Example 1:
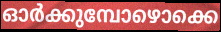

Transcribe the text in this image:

ഓർക്കുമ്പോഴൊക്കെ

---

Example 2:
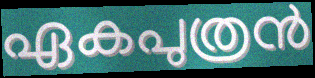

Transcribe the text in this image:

ഏകപുത്രൻ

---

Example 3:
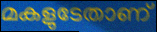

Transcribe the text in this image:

മകളുടേതാണ്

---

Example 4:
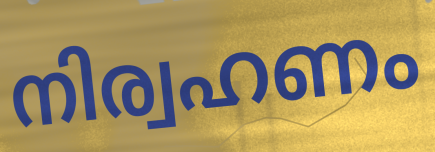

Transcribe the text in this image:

നിര്വഹണം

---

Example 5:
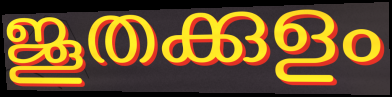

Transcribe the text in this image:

ജൂതക്കുളം